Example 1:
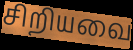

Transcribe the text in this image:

சிறியவை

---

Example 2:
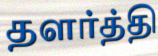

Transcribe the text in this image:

தளர்த்தி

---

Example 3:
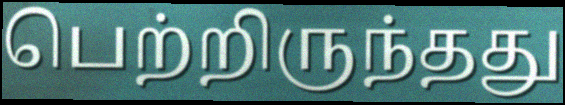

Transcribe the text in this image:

பெற்றிருந்தது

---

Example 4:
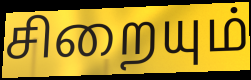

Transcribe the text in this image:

சிறையும்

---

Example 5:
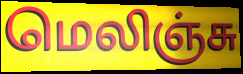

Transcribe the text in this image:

மெலிஞ்சு